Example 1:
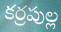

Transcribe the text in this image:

కర్రపుల్ల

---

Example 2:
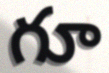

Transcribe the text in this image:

గూ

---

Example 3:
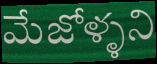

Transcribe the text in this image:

మేజోళ్ళని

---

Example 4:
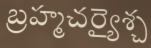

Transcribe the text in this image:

బ్రహ్మచర్యైశ్చ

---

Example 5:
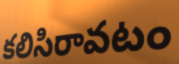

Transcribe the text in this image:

కలిసిరావటం